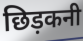
छिड़कनी